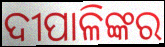
ଦୀପାଳିଙ୍କର